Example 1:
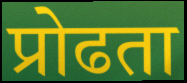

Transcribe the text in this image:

प्रोढता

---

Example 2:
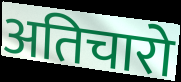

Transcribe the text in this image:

अतिचारो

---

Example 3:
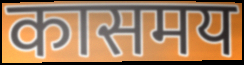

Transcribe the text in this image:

कासमय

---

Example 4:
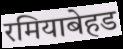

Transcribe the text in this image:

रमियाबेहड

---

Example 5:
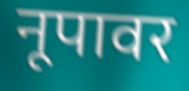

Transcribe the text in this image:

नूपावर